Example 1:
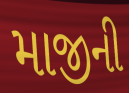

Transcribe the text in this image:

માજીની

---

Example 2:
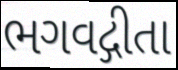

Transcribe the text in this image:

ભગવદ્ગીતા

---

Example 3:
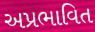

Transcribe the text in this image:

અપ્રભાવિત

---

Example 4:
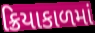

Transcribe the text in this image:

ક્રિયાકાળમાં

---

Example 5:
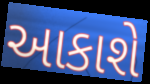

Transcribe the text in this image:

આકાશે